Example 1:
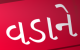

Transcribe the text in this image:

વડાને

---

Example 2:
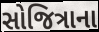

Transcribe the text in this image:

સોજિત્રાના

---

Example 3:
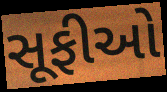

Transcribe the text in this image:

સૂફીઓ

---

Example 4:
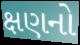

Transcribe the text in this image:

ક્ષણનો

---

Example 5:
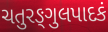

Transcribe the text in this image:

ચતુરઙ્ગુલપાદકં